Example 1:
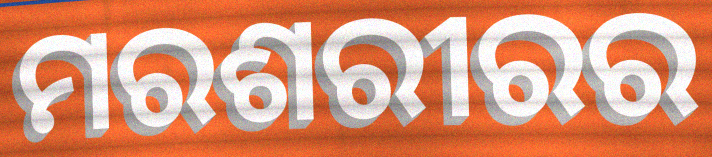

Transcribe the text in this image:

ମରଶରୀରର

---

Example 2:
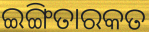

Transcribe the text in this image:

ଇଙ୍ଗିତାରକତ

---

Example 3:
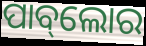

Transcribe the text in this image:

ପାବ୍‌ଲୋର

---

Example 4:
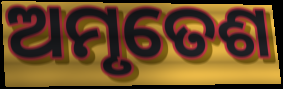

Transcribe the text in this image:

ଅମୃତେଶ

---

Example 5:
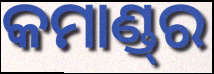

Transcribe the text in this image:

କମାଣ୍ଡ୍‌ର